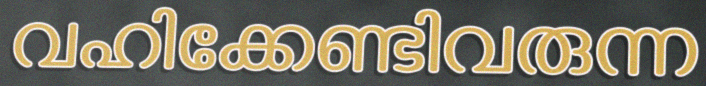
വഹിക്കേണ്ടിവരുന്ന